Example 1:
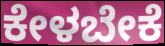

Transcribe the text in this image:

ಕೇಳಬೇಕೆ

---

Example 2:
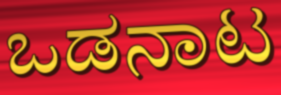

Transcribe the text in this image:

ಒಡನಾಟ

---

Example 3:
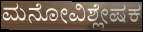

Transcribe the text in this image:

ಮನೋವಿಶ್ಲೇಷಕ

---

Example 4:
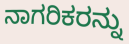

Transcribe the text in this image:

ನಾಗರಿಕರನ್ನು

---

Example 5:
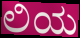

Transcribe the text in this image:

ಲಿಯ